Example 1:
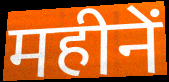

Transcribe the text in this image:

महीनें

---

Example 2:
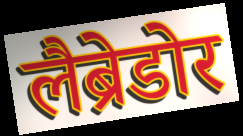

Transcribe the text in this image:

लैब्रेडोर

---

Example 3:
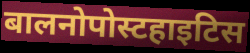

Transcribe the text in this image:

बालनोपोस्टहाइटिस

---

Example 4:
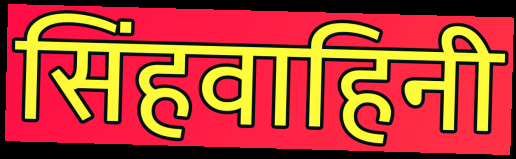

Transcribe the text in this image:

सिंहवाहिनी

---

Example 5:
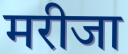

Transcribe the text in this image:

मरीजा